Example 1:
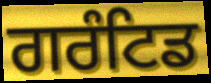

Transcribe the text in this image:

ਗਰੰਟਿਡ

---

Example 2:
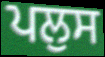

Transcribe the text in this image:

ਪਲੁਸ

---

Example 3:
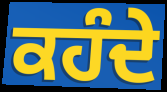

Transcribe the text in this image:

ਕਹੰਦੇ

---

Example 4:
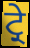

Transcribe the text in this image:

ਟ੍ਰੇ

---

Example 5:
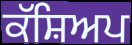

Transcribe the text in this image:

ਕੱਸ਼ਿਅਪ